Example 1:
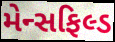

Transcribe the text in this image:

મેન્સફિલ્ડ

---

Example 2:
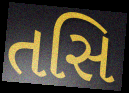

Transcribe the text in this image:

તસિ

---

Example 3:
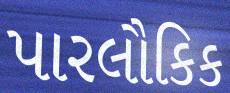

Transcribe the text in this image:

પારલૌકિક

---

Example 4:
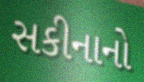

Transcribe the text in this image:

સકીનાનો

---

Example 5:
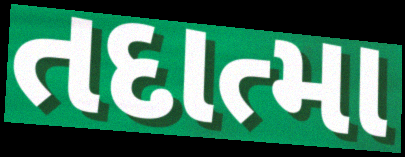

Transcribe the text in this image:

તદાત્મા